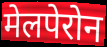
मेलपेरोन